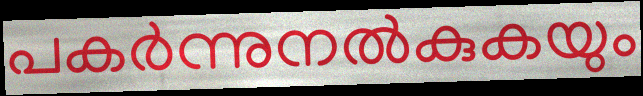
പകർന്നുനൽകുകയും